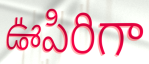
ఊపిరిగా